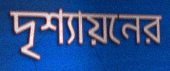
দৃশ্যায়নের